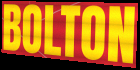
BOLTON